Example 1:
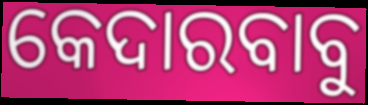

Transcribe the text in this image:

କେଦାରବାବୁ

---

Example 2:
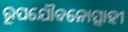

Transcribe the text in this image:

ରୂପଯୌବନୋତ୍ସାହୀ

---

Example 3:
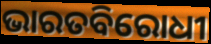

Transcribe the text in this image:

ଭାରତବିରୋଧୀ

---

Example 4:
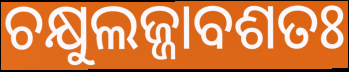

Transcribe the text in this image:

ଚକ୍ଷୁଲଜ୍ଜାବଶତଃ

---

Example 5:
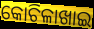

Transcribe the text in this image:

କୋଚିଳାଖାଇ